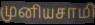
முனியசாமி